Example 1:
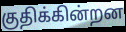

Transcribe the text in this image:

குதிக்கின்றன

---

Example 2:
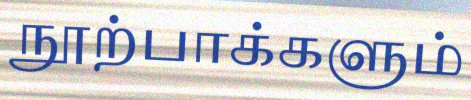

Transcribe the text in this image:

நூற்பாக்களும்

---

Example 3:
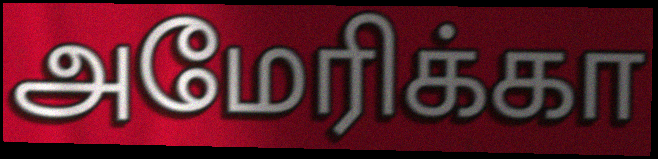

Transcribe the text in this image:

அமேரிக்கா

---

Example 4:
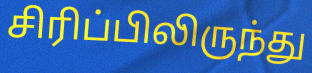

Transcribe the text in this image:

சிரிப்பிலிருந்து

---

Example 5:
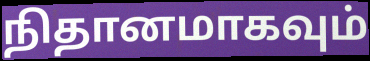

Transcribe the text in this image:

நிதானமாகவும்